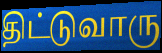
திட்டுவாரு